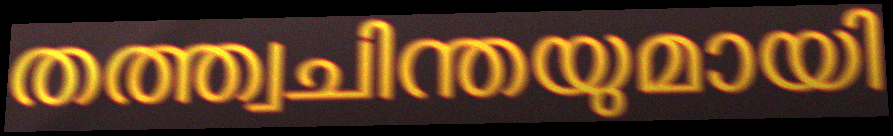
തത്ത്വചിന്തയുമായി